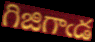
గిజిగాఁడ